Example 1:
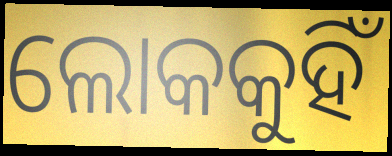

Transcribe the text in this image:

ଲୋକକୁହିଁ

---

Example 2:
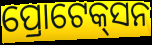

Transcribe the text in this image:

ପ୍ରୋଟେକ୍‌ସନ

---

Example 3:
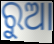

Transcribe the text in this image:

ରୁଆ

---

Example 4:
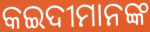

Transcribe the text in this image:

କଇଦୀମାନଙ୍କ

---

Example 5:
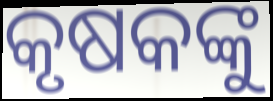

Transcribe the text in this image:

କୃଷକଙ୍କୁ